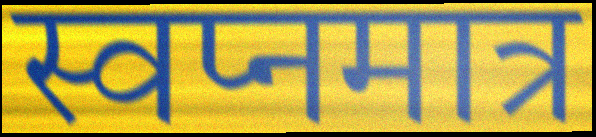
स्वप्नमात्र